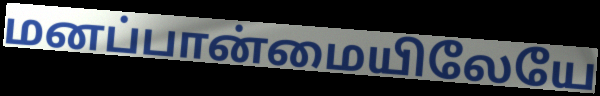
மனப்பான்மையிலேயே